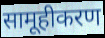
सामूहीकरण